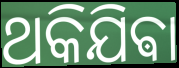
ଥକିଯିଵା